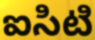
ఐసిటి